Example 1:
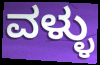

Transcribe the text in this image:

ವಳ್ಳು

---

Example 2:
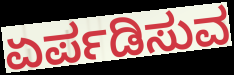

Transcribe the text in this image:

ಏರ್ಪಡಿಸುವ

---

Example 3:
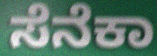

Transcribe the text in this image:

ಸೆನೆಕಾ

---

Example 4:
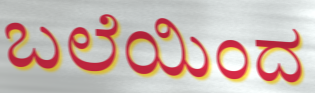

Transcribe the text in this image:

ಬಲೆಯಿಂದ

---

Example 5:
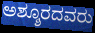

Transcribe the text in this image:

ಅಶ್ಶೂರದವರು